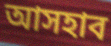
আসহাব